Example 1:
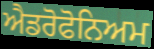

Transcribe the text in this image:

ਐਡਰੋਫੋਨਿਅਮ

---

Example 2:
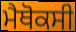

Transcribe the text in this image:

ਮੈਥੋਕਸੀ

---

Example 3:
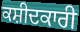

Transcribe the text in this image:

ਕਸ਼ੀਦਕਾਰੀ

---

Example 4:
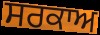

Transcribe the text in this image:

ਸਰਕਾਅ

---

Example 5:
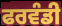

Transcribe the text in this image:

ਫਰਵੰਡੀ